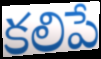
కలిపే